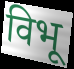
विभू